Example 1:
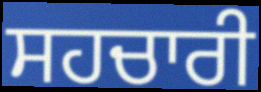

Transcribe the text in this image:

ਸਹਚਾਰੀ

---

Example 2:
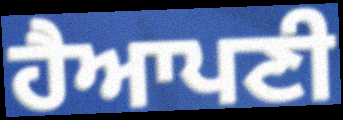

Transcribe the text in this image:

ਹੈਆਪਣੀ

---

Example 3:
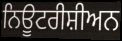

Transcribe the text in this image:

ਨਿਊਟਰੀਸ਼ੀਅਨ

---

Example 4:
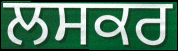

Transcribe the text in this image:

ਲਸਕਰ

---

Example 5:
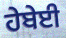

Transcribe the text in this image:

ਹੇਬੇਈ